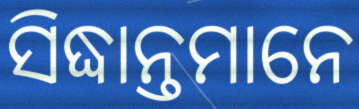
ସିଦ୍ଧାନ୍ତମାନେ